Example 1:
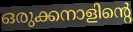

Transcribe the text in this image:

ഒരുക്കനാളിന്റെ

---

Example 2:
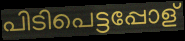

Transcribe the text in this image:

പിടിപെട്ടപ്പോള്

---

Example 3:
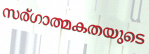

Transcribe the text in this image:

സര്ഗാത്മകതയുടെ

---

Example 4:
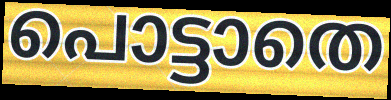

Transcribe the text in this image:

പൊട്ടാതെ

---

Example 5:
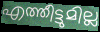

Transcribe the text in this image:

എത്തീട്ടുമില്ല